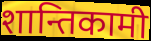
शान्तिकामी